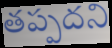
తప్పదని